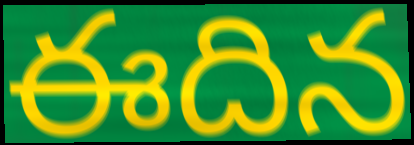
ఈదిన